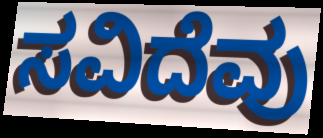
ಸವಿದೆವು